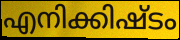
എനിക്കിഷ്ടം